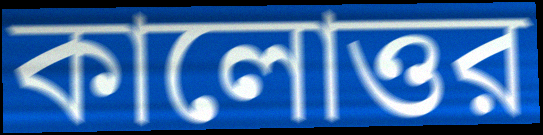
কালোত্তর